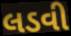
લડવી